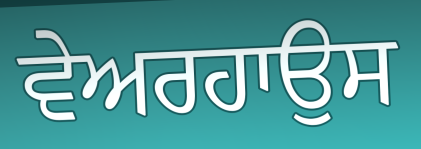
ਵੇਅਰਹਾਉਸ